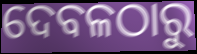
ଦେବଳଠାରୁ